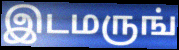
இடமருங்